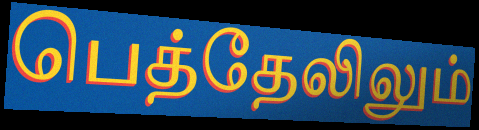
பெத்தேலிலும்